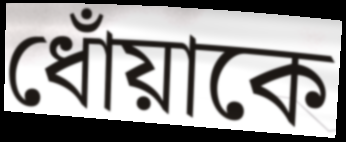
ধোঁয়াকে